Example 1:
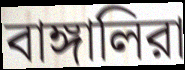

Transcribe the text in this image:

বাঙ্গালিরা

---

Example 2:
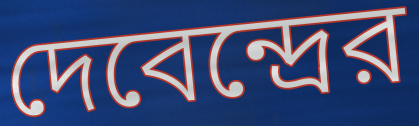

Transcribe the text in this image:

দেবেন্দ্রের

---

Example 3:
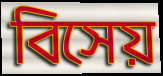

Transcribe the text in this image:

বিসেয়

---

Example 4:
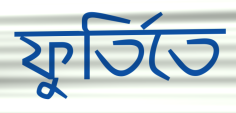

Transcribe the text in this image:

ফুর্তিতে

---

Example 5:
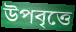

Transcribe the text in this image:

উপবৃত্তে